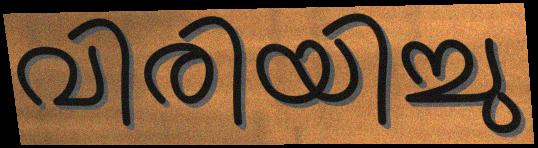
വിരിയിച്ചു